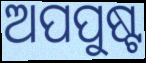
ଅପପୁଷ୍ଟ